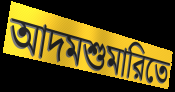
আদমশুমারিতে